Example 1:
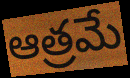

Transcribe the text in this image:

ఆత్రమే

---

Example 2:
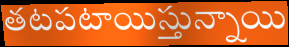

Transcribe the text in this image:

తటపటాయిస్తున్నాయి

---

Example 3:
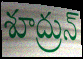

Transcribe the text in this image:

శూద్రున్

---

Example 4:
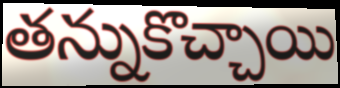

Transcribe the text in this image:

తన్నుకొచ్చాయి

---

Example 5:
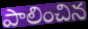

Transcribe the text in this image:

పాలించిన